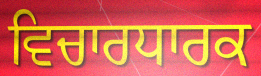
ਵਿਚਾਰਧਾਰਕ